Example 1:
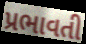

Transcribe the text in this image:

પ્રભાવતી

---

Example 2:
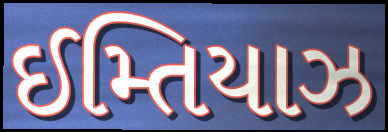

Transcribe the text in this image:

ઈમ્તિયાઝ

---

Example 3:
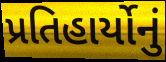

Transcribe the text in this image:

પ્રતિહાર્યોનું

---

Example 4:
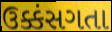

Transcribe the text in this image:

ઉક્કંસગતા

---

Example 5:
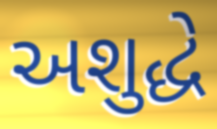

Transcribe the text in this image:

અશુદ્ધે